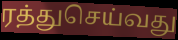
ரத்துசெய்வது